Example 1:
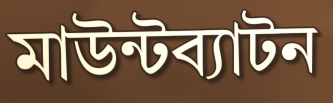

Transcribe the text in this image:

মাউন্টব্যাটন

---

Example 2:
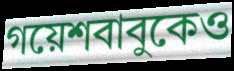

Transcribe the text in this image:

গয়েশবাবুকেও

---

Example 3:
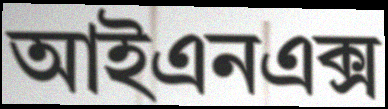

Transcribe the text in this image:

আইএনএক্স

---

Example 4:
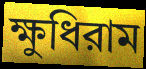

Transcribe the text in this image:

ক্ষুধিরাম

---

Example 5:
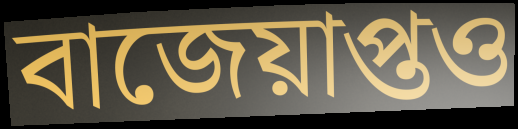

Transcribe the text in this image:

বাজেয়াপ্তও